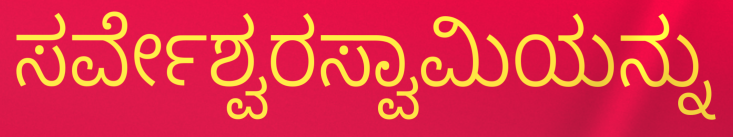
ಸರ್ವೇಶ್ವರಸ್ವಾಮಿಯನ್ನು